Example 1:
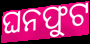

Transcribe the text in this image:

ଘନଫୁଟ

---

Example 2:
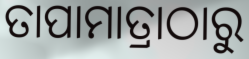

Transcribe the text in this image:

ତାପାମାତ୍ରାଠାରୁ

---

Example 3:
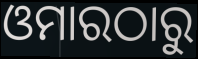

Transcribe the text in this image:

ଓମାରଠାରୁ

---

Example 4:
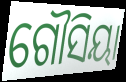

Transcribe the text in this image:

ଗୌସିୟା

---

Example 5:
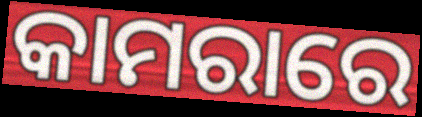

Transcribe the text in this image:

କାମରାରେ